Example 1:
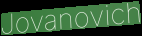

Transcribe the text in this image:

Jovanovich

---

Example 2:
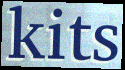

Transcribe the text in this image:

kits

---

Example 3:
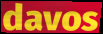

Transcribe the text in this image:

davos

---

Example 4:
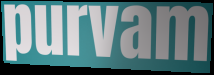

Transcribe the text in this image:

purvam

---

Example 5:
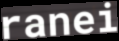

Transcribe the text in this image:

ranei